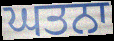
ਘਤਨਾ